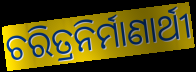
ଚରିତ୍ରନିର୍ମାଣାର୍ଥୀ